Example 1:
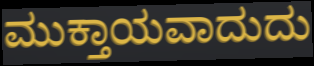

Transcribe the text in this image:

ಮುಕ್ತಾಯವಾದುದು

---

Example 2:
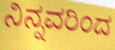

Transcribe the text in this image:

ನಿನ್ನವರಿಂದ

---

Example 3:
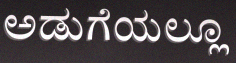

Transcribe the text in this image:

ಅಡುಗೆಯಲ್ಲೂ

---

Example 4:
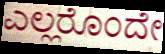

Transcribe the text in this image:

ಎಲ್ಲರೊಂದೇ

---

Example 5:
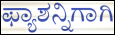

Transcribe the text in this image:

ಫ್ಯಾಶನ್ನಿಗಾಗಿ